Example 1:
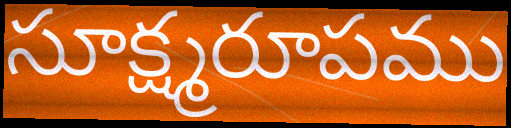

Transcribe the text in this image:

సూక్ష్మరూపము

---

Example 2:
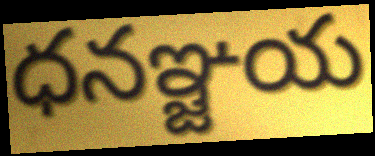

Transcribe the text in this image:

ధనఞ్జయ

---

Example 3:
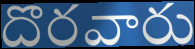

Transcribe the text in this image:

దొరవారు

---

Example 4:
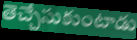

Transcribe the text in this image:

తెచ్చేసుకుంటాడు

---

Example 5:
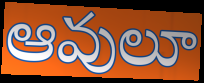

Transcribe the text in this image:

ఆవులూ